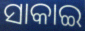
ସାକାଇ